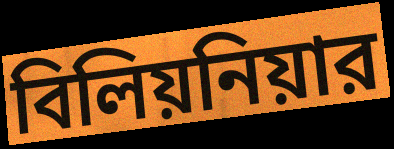
বিলিয়নিয়ার